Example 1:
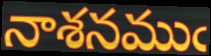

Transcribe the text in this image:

నాశనముఁ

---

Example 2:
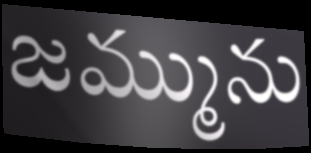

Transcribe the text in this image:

జమ్మును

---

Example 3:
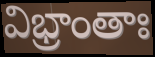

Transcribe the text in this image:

విభ్రాంతాః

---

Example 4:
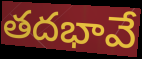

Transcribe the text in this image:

తదభావే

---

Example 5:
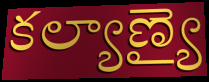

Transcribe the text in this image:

కల్యాణ్యై